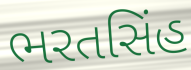
ભરતસિંહ